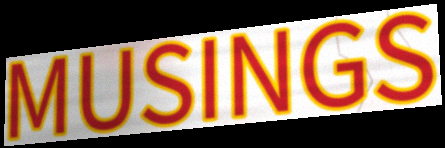
MUSINGS